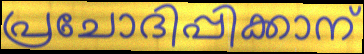
പ്രചോദിപ്പിക്കാന്